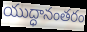
యుద్ధానంతరం